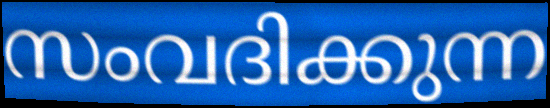
സംവദിക്കുന്ന